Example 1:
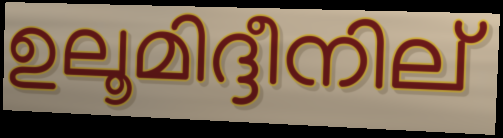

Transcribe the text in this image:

ഉലൂമിദ്ദീനില്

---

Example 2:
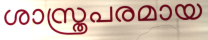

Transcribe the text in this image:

ശാസ്ത്രപരമായ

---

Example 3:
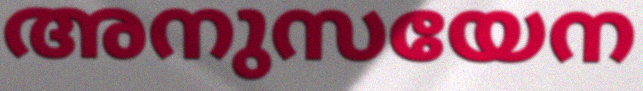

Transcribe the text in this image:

അനുസയേന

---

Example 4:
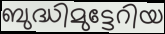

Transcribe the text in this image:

ബുദ്ധിമുട്ടേറിയ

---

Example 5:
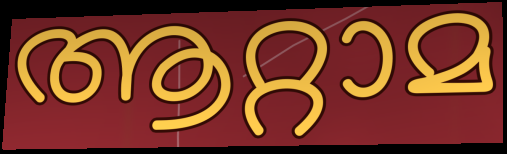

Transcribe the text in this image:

ആറ്റാമ